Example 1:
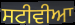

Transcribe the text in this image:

ਸਟੀਵੀਆ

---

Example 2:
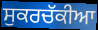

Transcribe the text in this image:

ਸੁਕਰਚੱਕੀਆ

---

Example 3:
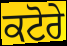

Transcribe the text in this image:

ਕਟੋਰੇ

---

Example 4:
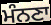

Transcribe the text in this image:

ਮੰਨਣਾ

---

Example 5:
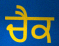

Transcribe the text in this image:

ਚੈਕ